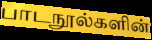
பாடநூல்களின்